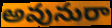
అవునురా